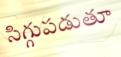
సిగ్గుపడుతూ